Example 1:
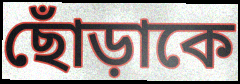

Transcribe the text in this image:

ছোঁড়াকে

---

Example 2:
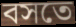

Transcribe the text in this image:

বসতে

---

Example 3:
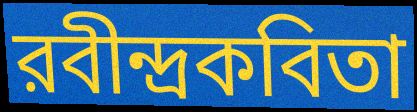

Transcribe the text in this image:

রবীন্দ্রকবিতা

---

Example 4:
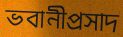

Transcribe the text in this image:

ভবানীপ্রসাদ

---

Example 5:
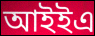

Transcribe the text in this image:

আইইএ